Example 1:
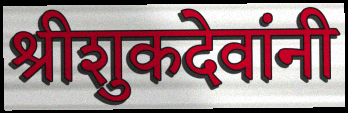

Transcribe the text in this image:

श्रीशुकदेवांनी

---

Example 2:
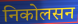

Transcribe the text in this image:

निकोलसन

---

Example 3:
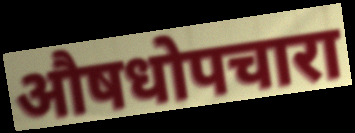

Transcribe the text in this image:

औषधोपचारा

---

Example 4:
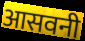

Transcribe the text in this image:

आसवनी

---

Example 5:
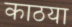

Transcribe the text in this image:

काठया